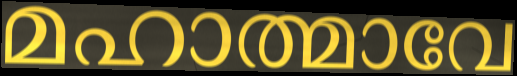
മഹാത്മാവേ